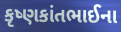
કૃષ્ણકાંતભાઈના